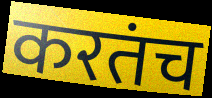
करतंच